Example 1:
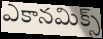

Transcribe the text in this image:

ఎకానమిక్స్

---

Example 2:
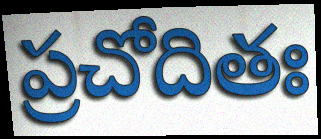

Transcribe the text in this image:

ప్రచోదితః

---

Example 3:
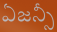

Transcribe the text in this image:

ఏజన్సీ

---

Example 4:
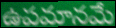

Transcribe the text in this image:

ఉపమానమే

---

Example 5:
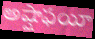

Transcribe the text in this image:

అష్షాఫయీ